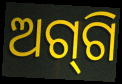
ଅଗ୍‌ଗି